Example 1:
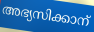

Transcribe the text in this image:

അഭ്യസിക്കാന്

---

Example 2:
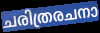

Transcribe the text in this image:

ചരിത്രരചനാ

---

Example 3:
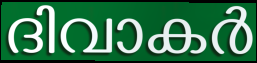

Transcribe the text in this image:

ദിവാകർ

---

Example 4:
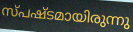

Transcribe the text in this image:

സ്പഷ്ടമായിരുന്നു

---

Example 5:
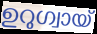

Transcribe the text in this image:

ഉറുഗ്വായ്